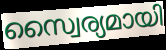
സ്വൈര്യമായി